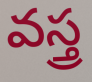
వస్త్ర